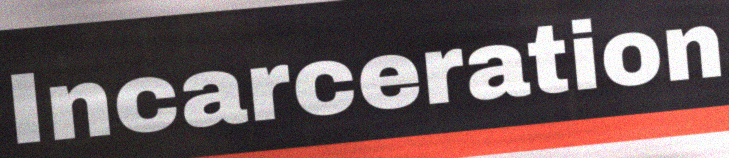
Incarceration